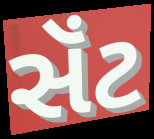
સૅંટ